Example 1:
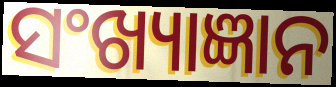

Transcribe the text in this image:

ସଂଖ୍ୟାଜ୍ଞାନ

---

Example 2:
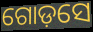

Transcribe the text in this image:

ଗୋଡ଼ସେ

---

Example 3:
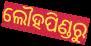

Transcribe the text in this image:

ଲୌହପିଣ୍ଡରୁ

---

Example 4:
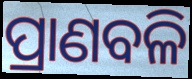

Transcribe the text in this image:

ପ୍ରାଣବଳି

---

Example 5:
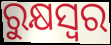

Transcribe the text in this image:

ରୁକ୍ଷସ୍ୱର